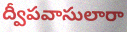
ద్వీపవాసులారా